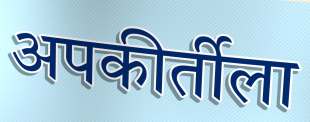
अपकीर्तीला